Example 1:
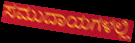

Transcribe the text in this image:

ಸಮುದಾಯಗಳಲ್ಲಿ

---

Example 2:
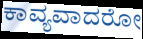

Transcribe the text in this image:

ಕಾವ್ಯವಾದರೋ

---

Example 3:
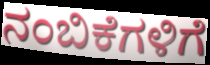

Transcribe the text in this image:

ನಂಬಿಕೆಗಳಿಗೆ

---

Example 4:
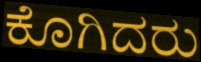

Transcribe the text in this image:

ಕೊಗಿದರು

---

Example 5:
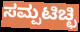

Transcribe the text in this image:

ಸಮ್ಪಟಿಚ್ಛಿ